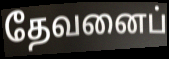
தேவனைப்